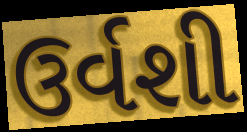
ઉર્વશી